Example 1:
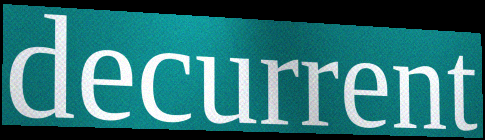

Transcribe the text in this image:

decurrent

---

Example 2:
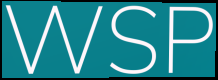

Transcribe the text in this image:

WSP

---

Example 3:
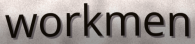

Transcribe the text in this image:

workmen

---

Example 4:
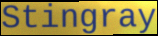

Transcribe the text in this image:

Stingray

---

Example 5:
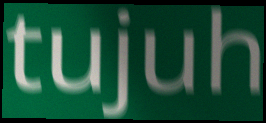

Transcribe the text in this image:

tujuh